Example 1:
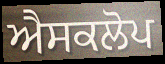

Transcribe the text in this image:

ਐਸਕਲੋਪ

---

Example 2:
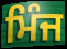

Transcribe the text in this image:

ਮਿੰਜ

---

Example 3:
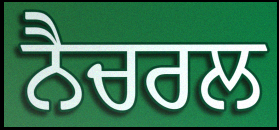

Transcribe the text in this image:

ਨੈਚਰਲ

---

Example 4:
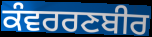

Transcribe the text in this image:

ਕੰਵਰਰਣਬੀਰ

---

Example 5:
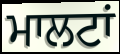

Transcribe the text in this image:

ਮਾਲਟਾਂ